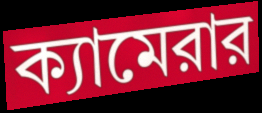
ক্যামেরার